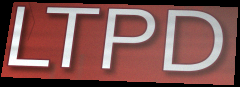
LTPD